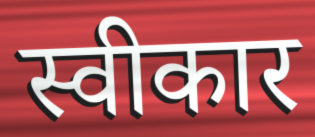
स्वीकार